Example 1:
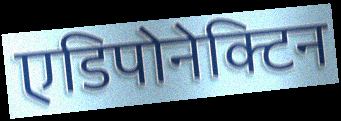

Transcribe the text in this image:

एडिपोनेक्टिन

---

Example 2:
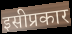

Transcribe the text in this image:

इसीप्रकार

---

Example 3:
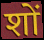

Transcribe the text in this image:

शों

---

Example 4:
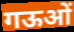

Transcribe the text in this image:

गऊओं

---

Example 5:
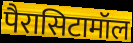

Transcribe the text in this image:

पैरासिटामॉल